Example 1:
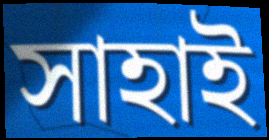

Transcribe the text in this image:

সাহাই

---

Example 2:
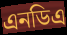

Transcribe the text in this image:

এনডিএ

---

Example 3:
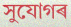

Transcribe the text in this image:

সুযোগৰ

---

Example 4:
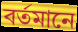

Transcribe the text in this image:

বৰ্তমানে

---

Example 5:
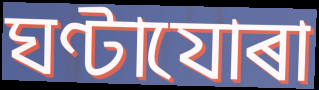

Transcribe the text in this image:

ঘণ্টাযোৰা